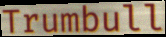
Trumbull